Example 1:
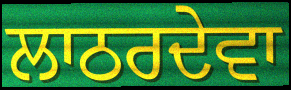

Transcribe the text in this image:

ਲਾਠਰਦੇਵਾ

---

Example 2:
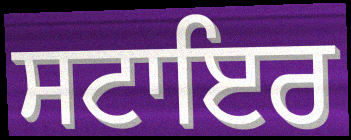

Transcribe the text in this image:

ਸਟਾਇਰ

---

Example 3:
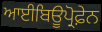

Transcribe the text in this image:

ਆਈਬਿਊਪ੍ਰੋਫ਼ੇਨ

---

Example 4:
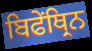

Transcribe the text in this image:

ਬਿਫੇਂਥ੍ਰਿਨ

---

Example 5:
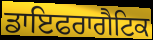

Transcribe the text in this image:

ਡਾਇਫਰਾਗੈਟਿਕ